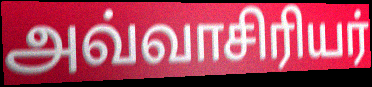
அவ்வாசிரியர்